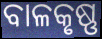
ବାଳକୃଷ୍ଣ